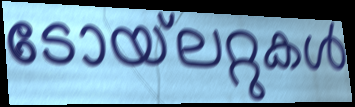
ടോയ്‌ലറ്റുകൾ